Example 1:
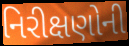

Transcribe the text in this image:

નિરીક્ષણોની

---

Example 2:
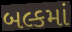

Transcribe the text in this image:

બલ્કમાં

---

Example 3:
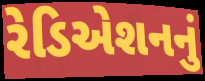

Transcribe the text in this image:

રેડિએશનનું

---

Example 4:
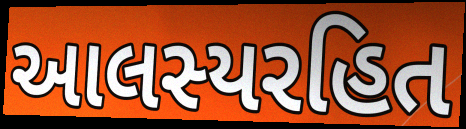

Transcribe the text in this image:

આલસ્યરહિત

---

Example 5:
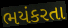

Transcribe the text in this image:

ભયંકરતા